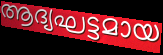
ആദ്യഘട്ടമായ